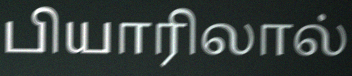
பியாரிலால்